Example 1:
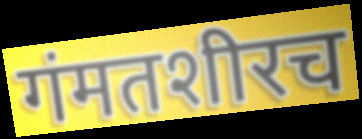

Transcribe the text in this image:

गंमतशीरच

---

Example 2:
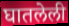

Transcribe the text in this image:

घातलेली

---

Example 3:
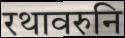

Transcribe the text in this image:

रथावरुनि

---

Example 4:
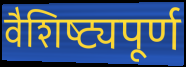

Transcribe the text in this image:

वैशिष्ट्यपूर्ण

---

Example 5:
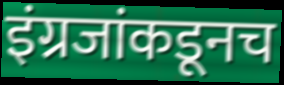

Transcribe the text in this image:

इंग्रजांकडूनच